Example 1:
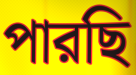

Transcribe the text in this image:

পারছি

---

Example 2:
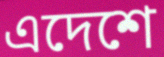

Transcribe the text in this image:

এদেশে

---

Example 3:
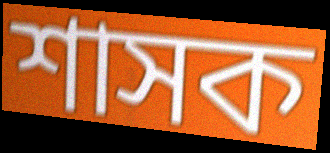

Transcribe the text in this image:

শাসক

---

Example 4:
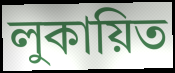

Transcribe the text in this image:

লুকায়িত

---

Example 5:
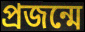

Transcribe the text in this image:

প্রজন্মে